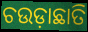
ଚଉଡ଼ାଛାତି